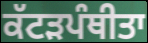
ਕੱਟੜਪੰਥੀਤਾ